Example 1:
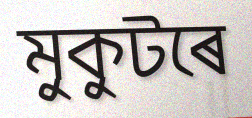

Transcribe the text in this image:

মুকুটৰে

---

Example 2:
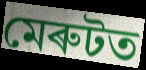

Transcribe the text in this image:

মেৰুটত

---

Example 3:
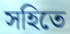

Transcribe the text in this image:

সহিতে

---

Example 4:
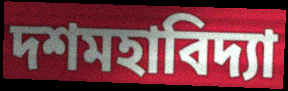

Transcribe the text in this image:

দশমহাবিদ্যা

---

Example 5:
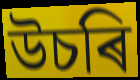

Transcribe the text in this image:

উচৰি